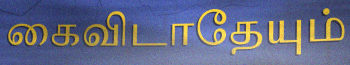
கைவிடாதேயும்